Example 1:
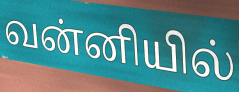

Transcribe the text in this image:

வன்னியில்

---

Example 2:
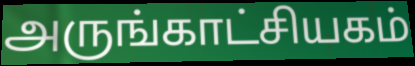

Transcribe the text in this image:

அருங்காட்சியகம்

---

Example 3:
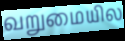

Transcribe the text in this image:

வறுமையில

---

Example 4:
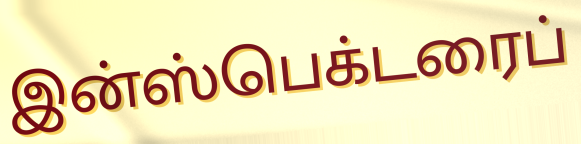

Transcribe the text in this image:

இன்ஸ்பெக்டரைப்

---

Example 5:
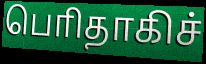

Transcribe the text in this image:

பெரிதாகிச்